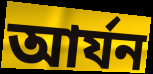
আর্যন